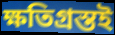
ক্ষতিগ্রস্তই